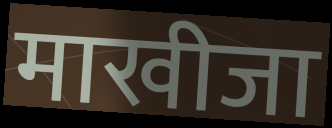
माखीजा